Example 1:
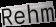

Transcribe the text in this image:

Rehm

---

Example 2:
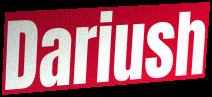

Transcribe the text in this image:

Dariush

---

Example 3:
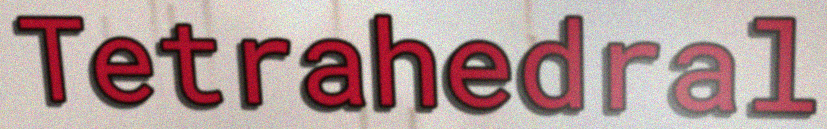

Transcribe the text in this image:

Tetrahedral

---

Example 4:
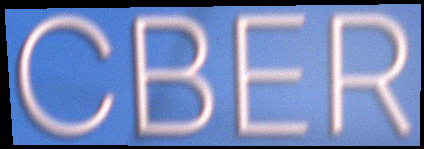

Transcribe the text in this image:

CBER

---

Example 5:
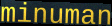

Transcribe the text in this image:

minuman